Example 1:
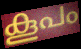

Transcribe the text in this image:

കൂപം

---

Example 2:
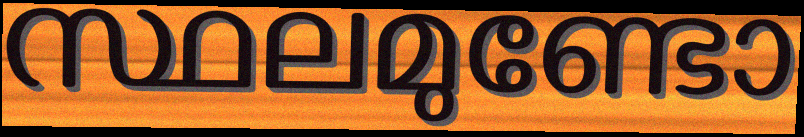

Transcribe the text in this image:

സ്ഥലമുണ്ടോ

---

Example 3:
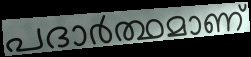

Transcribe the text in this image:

പദാർത്ഥമാണ്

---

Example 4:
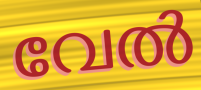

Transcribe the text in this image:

വേൽ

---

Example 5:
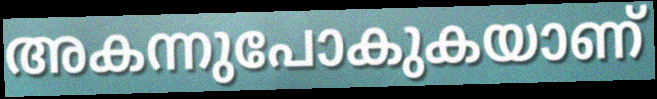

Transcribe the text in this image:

അകന്നുപോകുകയാണ്